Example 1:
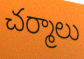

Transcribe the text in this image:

చర్మాలు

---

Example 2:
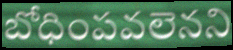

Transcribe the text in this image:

బోధింపవలెనని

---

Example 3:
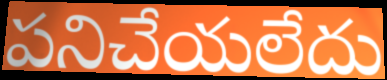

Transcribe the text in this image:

పనిచేయలేదు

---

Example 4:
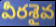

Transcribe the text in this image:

వీరశైవ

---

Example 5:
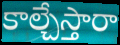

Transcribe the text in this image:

కాల్చేస్తారా